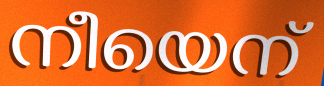
നീയെന്